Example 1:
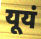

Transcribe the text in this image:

यूयं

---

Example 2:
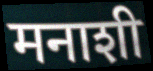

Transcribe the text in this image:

मनाशी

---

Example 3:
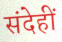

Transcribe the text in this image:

संदेहीं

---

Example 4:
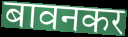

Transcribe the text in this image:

बावनकर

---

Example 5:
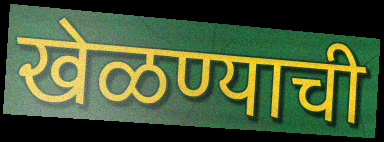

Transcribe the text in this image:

खेळण्याची